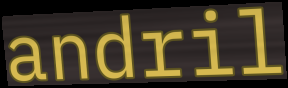
andril